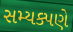
સમ્યક્પણે